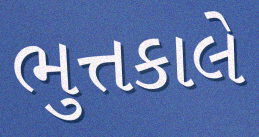
ભુત્તકાલે